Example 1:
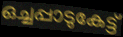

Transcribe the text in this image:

ഒച്ചപ്പാടുകേട്ട്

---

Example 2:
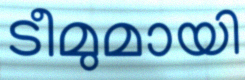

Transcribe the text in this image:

ടീമുമായി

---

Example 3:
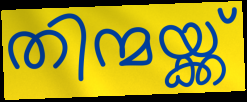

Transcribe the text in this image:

തിന്മയ്ക്ക്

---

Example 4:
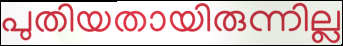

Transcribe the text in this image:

പുതിയതായിരുന്നില്ല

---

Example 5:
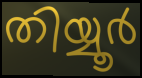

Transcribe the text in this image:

തിയ്യൂർ